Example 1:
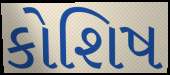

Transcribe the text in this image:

કોશિષ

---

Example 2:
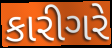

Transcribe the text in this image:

કારીગરે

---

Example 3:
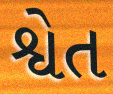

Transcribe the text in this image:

શ્વેત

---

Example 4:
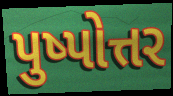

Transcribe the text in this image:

પુષ્પોત્તર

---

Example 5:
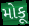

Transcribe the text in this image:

મોકૂ